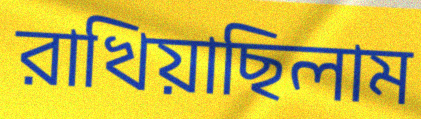
রাখিয়াছিলাম